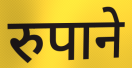
रुपाने